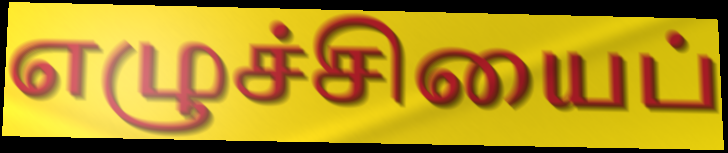
எழுச்சியைப்